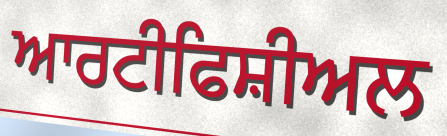
ਆਰਟੀਫਿਸ਼ੀਅਲ